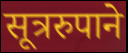
सूत्ररुपाने